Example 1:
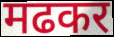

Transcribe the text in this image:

मढकर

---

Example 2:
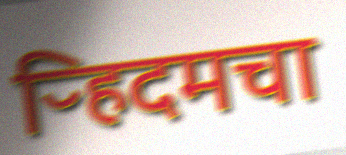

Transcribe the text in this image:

ऱ्हिदमचा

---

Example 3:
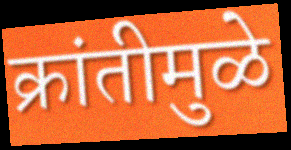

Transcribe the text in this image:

क्रांतीमुळे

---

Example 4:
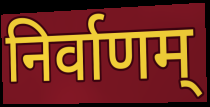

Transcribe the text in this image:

निर्वाणम्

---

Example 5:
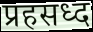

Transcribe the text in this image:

प्रहसध्द